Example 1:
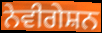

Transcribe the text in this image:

ਨੇਵੀਗੇਸ਼ਨ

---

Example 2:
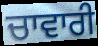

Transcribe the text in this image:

ਚਾਵਾਰੀ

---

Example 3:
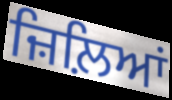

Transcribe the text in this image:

ਜ਼ਿਲ਼ਿਆਂ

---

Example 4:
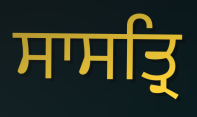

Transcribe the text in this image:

ਸਾਸਤ੍ਰਿ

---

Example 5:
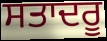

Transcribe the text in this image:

ਸਤਾਦਰੂ